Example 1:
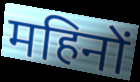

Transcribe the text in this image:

महिनों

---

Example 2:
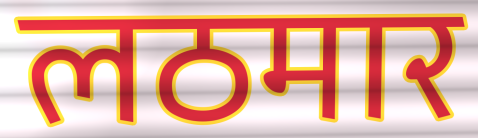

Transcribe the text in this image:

लठमार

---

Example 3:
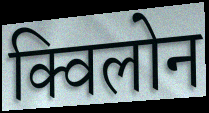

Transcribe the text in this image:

क्विलोन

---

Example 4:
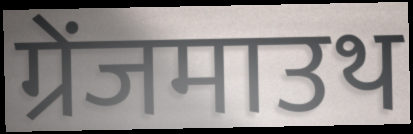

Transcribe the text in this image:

ग्रेंजमाउथ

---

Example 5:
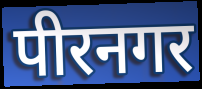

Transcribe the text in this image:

पीरनगर